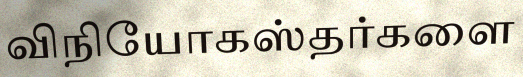
விநியோகஸ்தர்களை